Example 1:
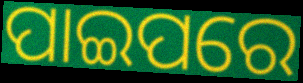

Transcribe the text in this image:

ପାଇପରେ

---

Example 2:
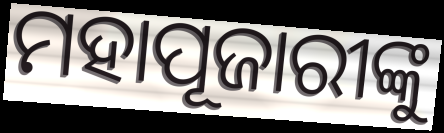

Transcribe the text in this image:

ମହାପୂଜାରୀଙ୍କୁ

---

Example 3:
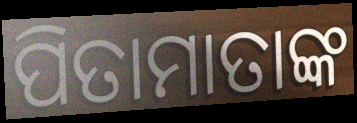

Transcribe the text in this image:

ପିତାମାତାଙ୍କ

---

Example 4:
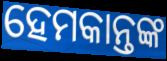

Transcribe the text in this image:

ହେମକାନ୍ତଙ୍କ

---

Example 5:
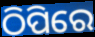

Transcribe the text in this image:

ଠିପିରେ